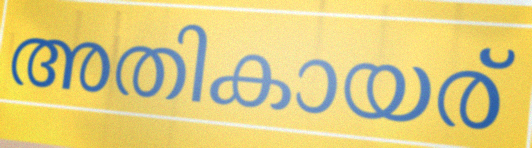
അതികായര്